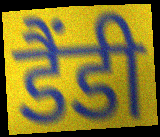
डैंडी